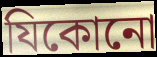
যিকোনো